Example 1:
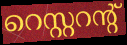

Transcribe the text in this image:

റെസ്റ്ററന്റ്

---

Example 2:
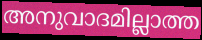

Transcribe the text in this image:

അനുവാദമില്ലാത്ത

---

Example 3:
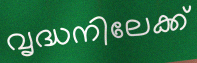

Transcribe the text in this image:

വൃദ്ധനിലേക്ക്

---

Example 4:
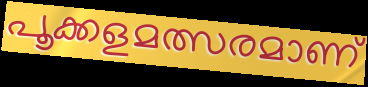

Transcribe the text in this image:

പൂക്കളമത്സരമാണ്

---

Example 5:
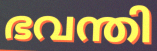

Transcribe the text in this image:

ഭവന്തി